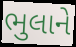
ભુલાને